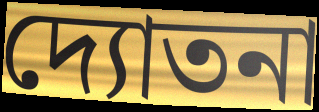
দ্যোতনা